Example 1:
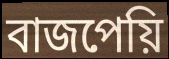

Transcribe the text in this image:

বাজপেয়ি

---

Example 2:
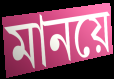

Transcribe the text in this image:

মানয়ে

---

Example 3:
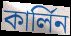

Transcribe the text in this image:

কার্লিন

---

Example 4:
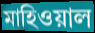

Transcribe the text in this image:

মাহিওয়াল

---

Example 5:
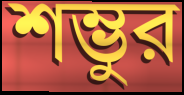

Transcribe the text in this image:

শম্ভুর